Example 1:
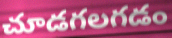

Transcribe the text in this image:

చూడగలగడం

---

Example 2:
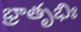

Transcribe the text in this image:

భ్రాతృభిః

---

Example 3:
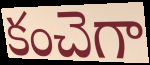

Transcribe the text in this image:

కంచెగా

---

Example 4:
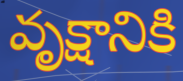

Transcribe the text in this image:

వృక్షానికి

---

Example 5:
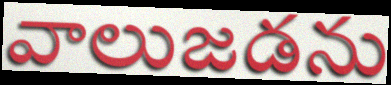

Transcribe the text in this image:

వాలుజడను